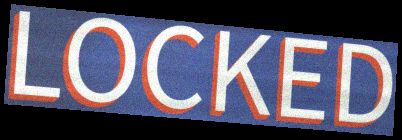
LOCKED